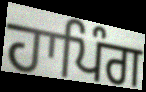
ਹਾਪਿੰਗ